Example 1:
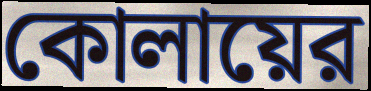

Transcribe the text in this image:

কোলায়ের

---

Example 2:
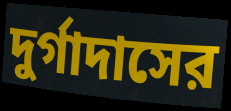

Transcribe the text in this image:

দুর্গাদাসের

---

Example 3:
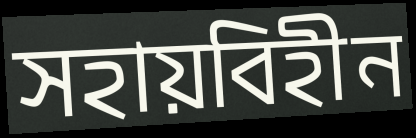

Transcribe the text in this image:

সহায়বিহীন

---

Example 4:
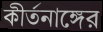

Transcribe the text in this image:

কীর্তনাঙ্গের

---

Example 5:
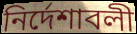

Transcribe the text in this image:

নির্দেশাবলী